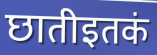
छातीइतकं